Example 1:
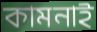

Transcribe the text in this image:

কামনাই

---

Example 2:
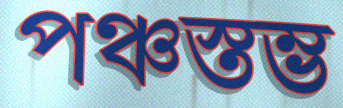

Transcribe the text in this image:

পঞ্চস্তম্ভ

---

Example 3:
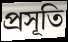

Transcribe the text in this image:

প্ৰসূতি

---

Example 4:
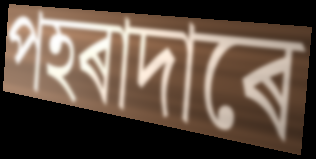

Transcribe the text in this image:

পহৰাদাৰে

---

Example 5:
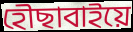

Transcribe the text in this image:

হৌছাবাইয়ে